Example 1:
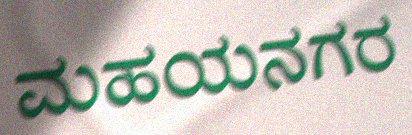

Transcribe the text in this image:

ಮಹಯನಗರ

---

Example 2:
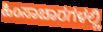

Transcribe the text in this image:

ಹಿಂಸಾಚಾರಗಳಲ್ಲಿ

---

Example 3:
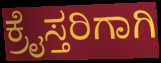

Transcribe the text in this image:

ಕ್ರೈಸ್ತರಿಗಾಗಿ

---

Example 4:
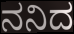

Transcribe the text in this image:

ನನಿದ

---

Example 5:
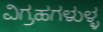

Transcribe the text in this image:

ವಿಗ್ರಹಗಳುಳ್ಳ